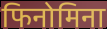
फिनोमिना